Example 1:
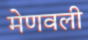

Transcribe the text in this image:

मेणवली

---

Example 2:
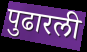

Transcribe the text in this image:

पुढारली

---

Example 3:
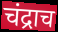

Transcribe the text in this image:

चंद्राच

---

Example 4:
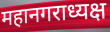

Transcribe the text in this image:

महानगराध्यक्ष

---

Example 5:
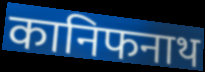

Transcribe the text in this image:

कानिफनाथ